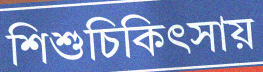
শিশুচিকিৎসায়